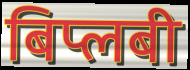
बिप्लबी